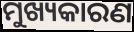
ମୁଖ୍ୟକାରଣ